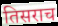
तिसराच